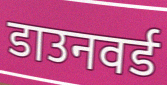
डाउनवर्ड